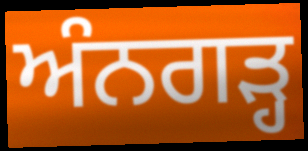
ਅੰਨਗੜ੍ਹ